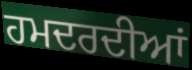
ਹਮਦਰਦੀਆਂ